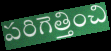
పరిగెత్తించి